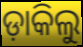
ଡ଼ାକିଲୁ